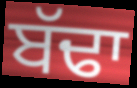
ਬੱਢਾ